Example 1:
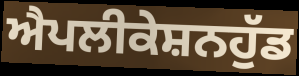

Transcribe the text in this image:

ਐਪਲੀਕੇਸ਼ਨਹੁੱਡ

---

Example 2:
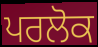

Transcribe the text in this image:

ਪਰਲੋਕ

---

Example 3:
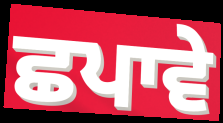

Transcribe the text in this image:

ਛਪਾਵੇ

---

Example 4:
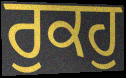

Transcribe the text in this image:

ਰੁਕਹੁ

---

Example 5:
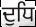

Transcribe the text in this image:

ਦੁਧਿ